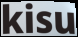
kisu